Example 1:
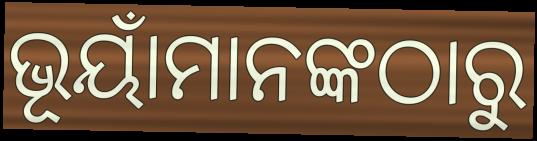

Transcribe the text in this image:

ଭୂୟାଁମାନଙ୍କଠାରୁ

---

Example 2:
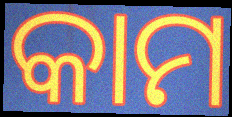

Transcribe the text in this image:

କାମ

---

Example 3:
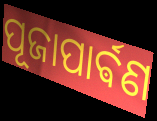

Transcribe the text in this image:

ପୂଜାପାର୍ଵଣ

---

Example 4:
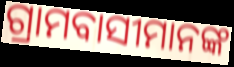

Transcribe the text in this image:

ଗ୍ରାମବାସୀମାନଙ୍କ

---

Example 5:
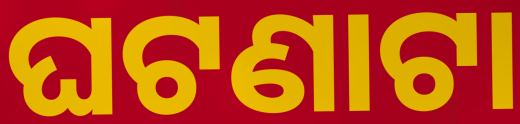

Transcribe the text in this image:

ଘଟଣାଟା